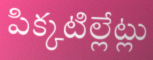
పిక్కటిల్లేట్లు